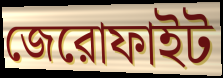
জেরোফাইট